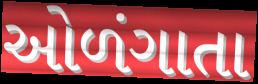
ઓળંગાતા